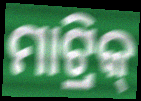
ମାଟ୍ରିକ୍